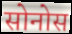
सोनोस